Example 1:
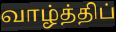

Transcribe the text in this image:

வாழ்த்திப்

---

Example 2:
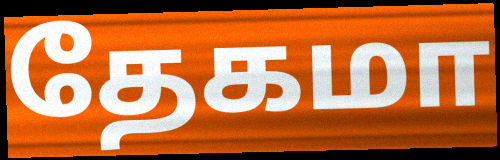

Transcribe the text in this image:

தேகமா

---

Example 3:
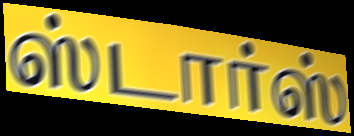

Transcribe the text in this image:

ஸ்டார்ஸ்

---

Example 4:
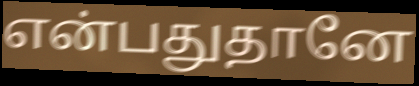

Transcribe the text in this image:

என்பதுதானே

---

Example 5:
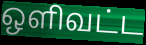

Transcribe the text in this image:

ஒளிவட்ட